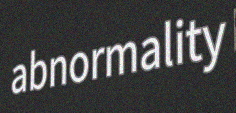
abnormality